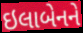
ઇલાબેનને